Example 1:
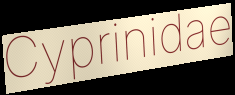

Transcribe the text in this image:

Cyprinidae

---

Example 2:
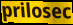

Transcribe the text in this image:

prilosec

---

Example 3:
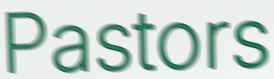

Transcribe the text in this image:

Pastors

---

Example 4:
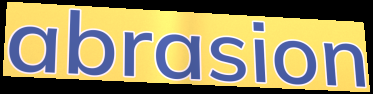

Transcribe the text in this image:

abrasion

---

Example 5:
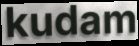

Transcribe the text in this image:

kudam